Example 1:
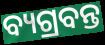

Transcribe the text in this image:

ବ୍ୟଗ୍ରବନ୍ତ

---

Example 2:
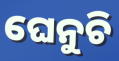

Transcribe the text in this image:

ଘେନୁଚି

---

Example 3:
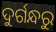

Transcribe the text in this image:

ଦୁର୍ଗନ୍ଧରୁ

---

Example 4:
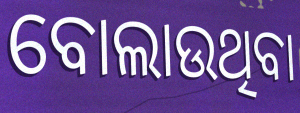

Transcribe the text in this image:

ବୋଲାଉଥିବା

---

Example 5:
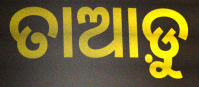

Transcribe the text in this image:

ତାଆଡ଼ୁ